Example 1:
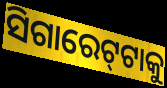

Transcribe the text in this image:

ସିଗାରେଟ୍‍ଟାକୁ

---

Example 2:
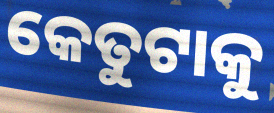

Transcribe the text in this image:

କେତୁଟାକୁ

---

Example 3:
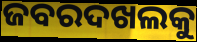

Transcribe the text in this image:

ଜବରଦଖଲକୁ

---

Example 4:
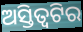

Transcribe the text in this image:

ଅସ୍ତିତ୍ୱଟିର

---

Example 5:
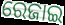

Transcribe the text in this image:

ରେଜାଇ